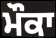
ਮੌਕਾ